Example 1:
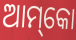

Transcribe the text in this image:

ଆମ୍‌କୋ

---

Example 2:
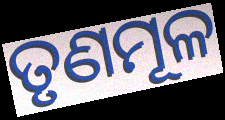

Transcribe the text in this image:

ତୃଣମୂଳ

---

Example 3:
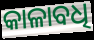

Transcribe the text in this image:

କାଳାବଧି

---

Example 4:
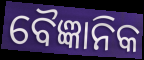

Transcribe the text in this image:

ବୈଜ୍ଞାନିକ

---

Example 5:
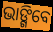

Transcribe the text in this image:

ଭାଙ୍ଗିବେ